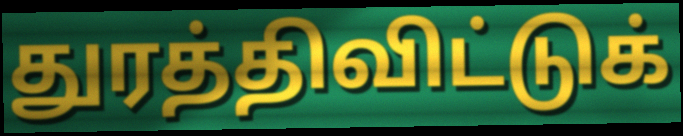
துரத்திவிட்டுக்